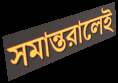
সমান্তরালেই